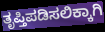
ತೃಪ್ತಿಪಡಿಸಲಿಕ್ಕಾಗಿ